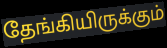
தேங்கியிருக்கும்